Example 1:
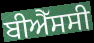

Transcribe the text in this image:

ਬੀਐੱਸਸੀ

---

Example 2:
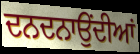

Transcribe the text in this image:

ਦਨਦਨਾਉਂਦੀਆਂ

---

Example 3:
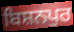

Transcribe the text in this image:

ਬਿਸ਼ਨਪੁਰ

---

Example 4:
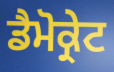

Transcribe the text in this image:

ਡੈਮੋਕ੍ਰੇਟ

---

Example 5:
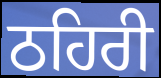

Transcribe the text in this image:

ਠਹਿਰੀ